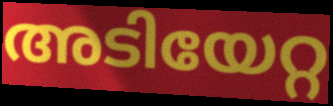
അടിയേറ്റ